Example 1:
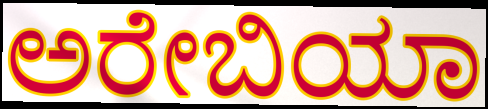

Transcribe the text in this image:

ಅರೇಬಿಯಾ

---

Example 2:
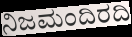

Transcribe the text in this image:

ನಿಜಮಂದಿರದಿ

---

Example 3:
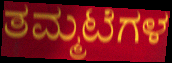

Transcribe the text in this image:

ತಮ್ಮಟೆಗಳ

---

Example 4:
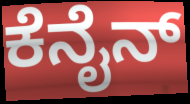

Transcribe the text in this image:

ಕೆನೈನ್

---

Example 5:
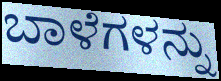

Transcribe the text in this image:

ಬಾಳೆಗಳನ್ನು